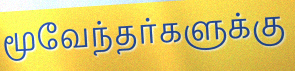
மூவேந்தர்களுக்கு